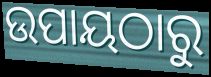
ଉପାୟଠାରୁ